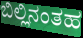
ಬಿಲ್ಲಿನಂತಹ